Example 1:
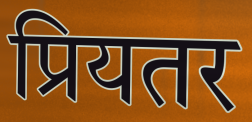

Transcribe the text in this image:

प्रियतर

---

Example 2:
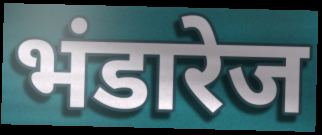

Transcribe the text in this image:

भंडारेज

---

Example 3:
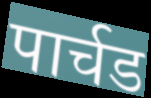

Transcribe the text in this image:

पार्चड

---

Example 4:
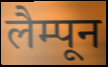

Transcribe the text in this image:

लैम्पून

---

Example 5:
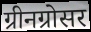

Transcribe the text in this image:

ग्रीनग्रोसर